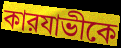
কারযাভীকে